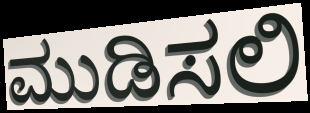
ಮುಡಿಸಲಿ